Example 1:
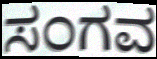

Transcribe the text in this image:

ಸಂಗವ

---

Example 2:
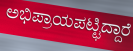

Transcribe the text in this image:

ಅಭಿಪ್ರಾಯಪಟ್ಟಿದ್ದಾರೆ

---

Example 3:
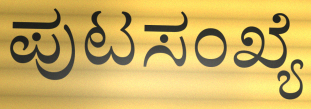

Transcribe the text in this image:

ಪುಟಸಂಖ್ಯೆ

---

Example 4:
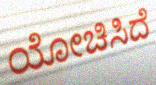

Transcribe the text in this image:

ಯೋಚಿಸಿದೆ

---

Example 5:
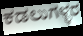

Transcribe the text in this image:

ಕಡಲುಗಳ್ಳರ